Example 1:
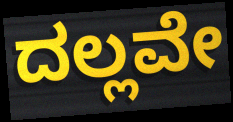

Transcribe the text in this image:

ದಲ್ಲವೇ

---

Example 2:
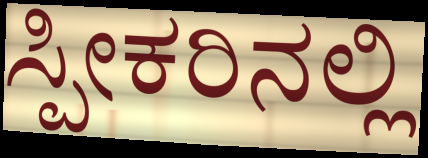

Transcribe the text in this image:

ಸ್ಪೀಕರಿನಲ್ಲಿ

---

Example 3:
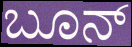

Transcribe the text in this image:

ಬೂನ್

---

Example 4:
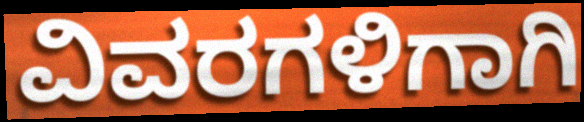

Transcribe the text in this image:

ವಿವರಗಳಿಗಾಗಿ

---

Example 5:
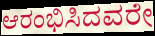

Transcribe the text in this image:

ಆರಂಭಿಸಿದವರೇ